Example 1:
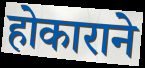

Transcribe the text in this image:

होकाराने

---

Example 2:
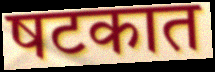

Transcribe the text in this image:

षटकात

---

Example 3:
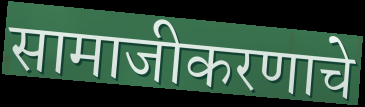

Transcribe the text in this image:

सामाजीकरणाचे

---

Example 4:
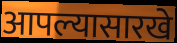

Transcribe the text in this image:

आपल्यासारखे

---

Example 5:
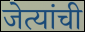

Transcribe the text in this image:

जेत्यांची